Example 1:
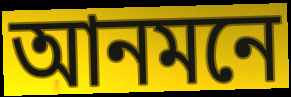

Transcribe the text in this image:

আনমনে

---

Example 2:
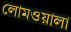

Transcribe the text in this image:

লোমওয়ালা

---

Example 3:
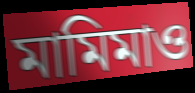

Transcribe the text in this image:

মামিমাও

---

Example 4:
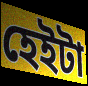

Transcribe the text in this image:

হেইটা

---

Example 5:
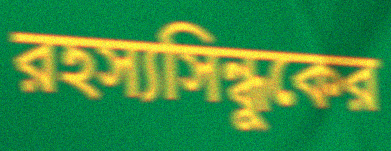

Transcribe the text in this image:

রহস্যসিন্ধুকের